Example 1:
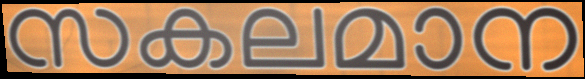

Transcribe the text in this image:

സകലമാന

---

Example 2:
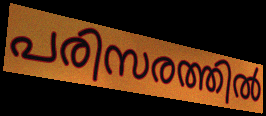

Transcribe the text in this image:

പരിസരത്തിൽ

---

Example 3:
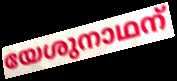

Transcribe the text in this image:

യേശുനാഥന്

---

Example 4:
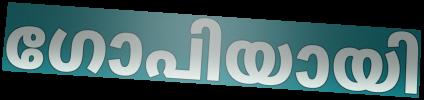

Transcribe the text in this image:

ഗോപിയായി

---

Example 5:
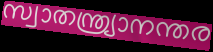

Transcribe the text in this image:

സ്വാതന്ത്ര്യാനന്തര